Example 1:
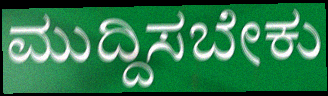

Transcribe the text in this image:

ಮುದ್ದಿಸಬೇಕು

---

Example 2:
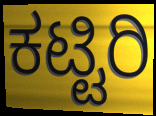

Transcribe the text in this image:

ಕಟ್ಟಿರಿ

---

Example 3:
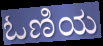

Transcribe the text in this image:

ಓಣಿಯ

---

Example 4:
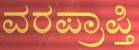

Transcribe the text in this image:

ವರಪ್ರಾಪ್ತಿ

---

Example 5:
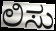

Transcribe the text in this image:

ಲಿಸು